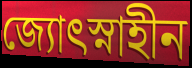
জ্যোৎস্নাহীন